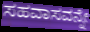
ಸಹವಾಸವನ್ನೇ